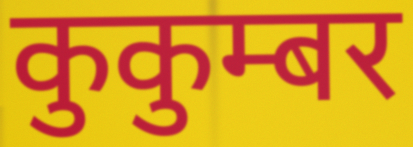
कुकुम्बर